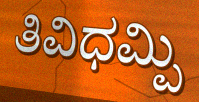
ತಿವಿಧಮ್ಪಿ